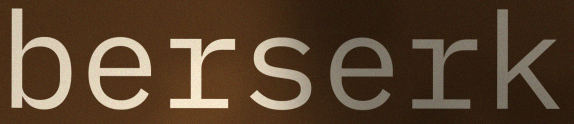
berserk